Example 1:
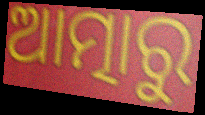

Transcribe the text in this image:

ଆତ୍ମାରୁ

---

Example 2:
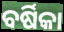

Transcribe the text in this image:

ବର୍ଷିକା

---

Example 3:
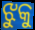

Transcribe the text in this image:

ଝୁକୁ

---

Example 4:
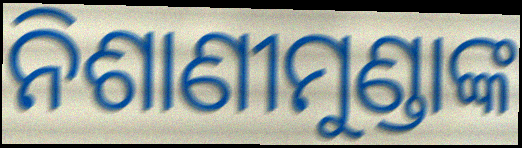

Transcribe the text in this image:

ନିଶାଣୀମୁଣ୍ଡାଙ୍କ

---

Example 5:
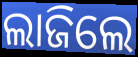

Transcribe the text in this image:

ଲାଜିଲେ